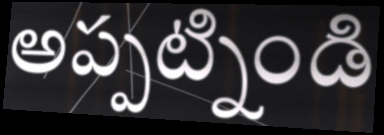
అప్పట్నిండి